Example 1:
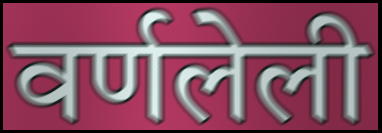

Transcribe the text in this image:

वर्णलेली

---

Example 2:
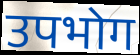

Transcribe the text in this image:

उपभोग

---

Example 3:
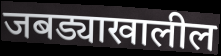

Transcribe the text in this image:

जबड्याखालील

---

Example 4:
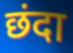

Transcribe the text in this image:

छंदा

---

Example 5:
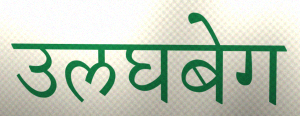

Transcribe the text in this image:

उलघबेग